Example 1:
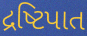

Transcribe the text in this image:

દ્રષ્ટિપાત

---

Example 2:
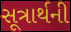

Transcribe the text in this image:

સૂત્રાર્થની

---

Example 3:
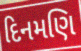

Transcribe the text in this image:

દિનમણિ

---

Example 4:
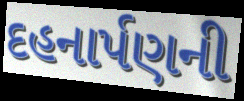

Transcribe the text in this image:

દહનાર્પણની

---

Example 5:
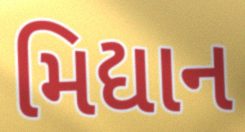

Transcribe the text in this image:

મિદ્યાન